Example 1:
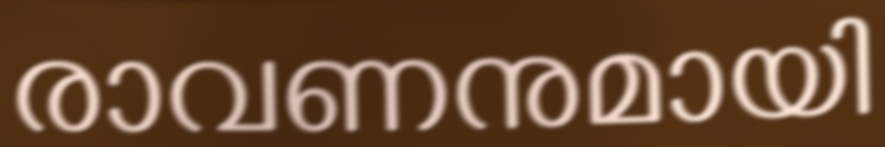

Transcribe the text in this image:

രാവണനുമായി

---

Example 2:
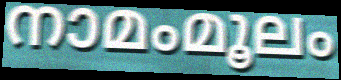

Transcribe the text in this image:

നാമംമൂലം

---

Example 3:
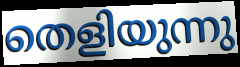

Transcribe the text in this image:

തെളിയുന്നു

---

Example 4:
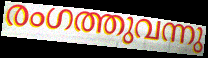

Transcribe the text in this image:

രംഗത്തുവന്നു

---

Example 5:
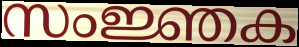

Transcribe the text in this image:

സംജ്ഞക